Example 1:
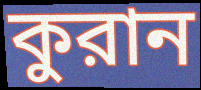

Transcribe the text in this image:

কুরান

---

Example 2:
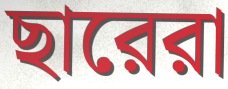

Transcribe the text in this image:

ছারেরা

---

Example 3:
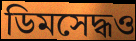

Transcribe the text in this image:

ডিমসেদ্ধও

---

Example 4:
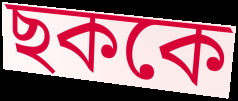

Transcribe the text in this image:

ছককে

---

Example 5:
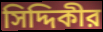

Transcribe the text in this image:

সিদ্দিকীর